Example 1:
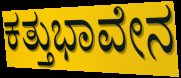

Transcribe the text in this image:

ಕತ್ತುಭಾವೇನ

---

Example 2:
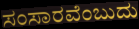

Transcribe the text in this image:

ಸಂಸಾರವೆಂಬುದು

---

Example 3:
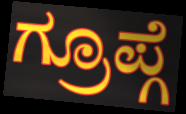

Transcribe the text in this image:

ಗ್ರೂಪ್ಗೆ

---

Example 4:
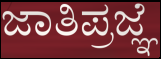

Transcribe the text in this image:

ಜಾತಿಪ್ರಜ್ಞೆ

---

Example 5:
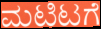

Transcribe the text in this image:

ಮಟಿಟಗೆ